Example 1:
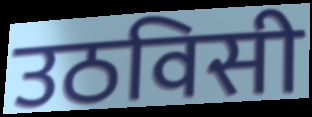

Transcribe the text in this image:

उठविसी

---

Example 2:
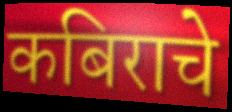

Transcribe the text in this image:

कबिराचे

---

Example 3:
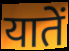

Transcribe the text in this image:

यातें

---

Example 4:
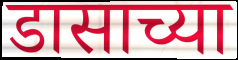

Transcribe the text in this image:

डासाच्या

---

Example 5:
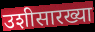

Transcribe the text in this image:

उशीसारख्या